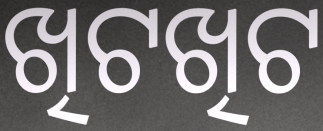
ଖିଟଖିଟ